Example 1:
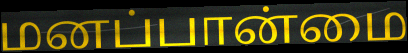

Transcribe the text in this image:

மனப்பான்மை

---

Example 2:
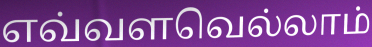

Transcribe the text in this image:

எவ்வளவெல்லாம்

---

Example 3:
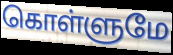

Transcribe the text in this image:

கொள்ளுமே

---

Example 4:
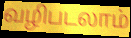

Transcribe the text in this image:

வழிபடலாம்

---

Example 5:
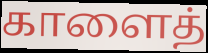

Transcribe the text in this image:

காளைத்